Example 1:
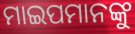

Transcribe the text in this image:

ମାଇପମାନଙ୍କୁ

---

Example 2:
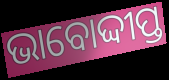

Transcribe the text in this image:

ଭାବୋଦ୍ଦୀପ୍ତ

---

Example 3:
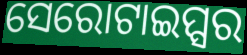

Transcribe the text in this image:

ସେରୋଟାଇପ୍ସର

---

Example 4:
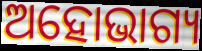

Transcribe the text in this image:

ଅହୋଭାଗ୍ୟ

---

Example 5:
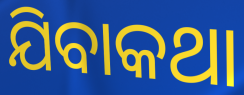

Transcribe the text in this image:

ଯିବାକଥା